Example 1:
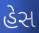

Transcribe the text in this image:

હેસ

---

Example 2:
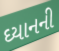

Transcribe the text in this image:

ઘ્યાનની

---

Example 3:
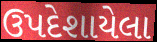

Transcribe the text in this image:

ઉપદેશાયેલા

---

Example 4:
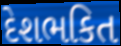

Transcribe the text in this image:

દેશભકિત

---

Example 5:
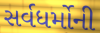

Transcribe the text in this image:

સર્વધર્મોની